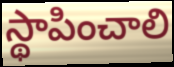
స్థాపించాలి